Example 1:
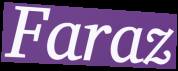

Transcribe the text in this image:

Faraz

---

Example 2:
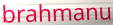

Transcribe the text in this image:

brahmanu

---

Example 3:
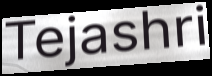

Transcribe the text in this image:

Tejashri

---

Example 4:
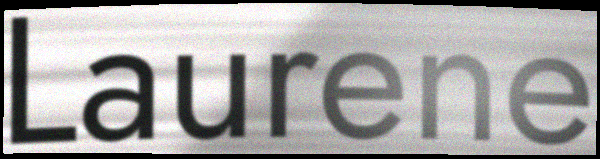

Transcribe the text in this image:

Laurene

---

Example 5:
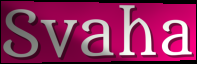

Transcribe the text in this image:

Svaha